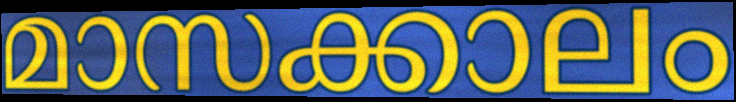
മാസക്കാലം